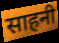
साहनी